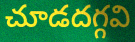
చూడదగ్గవి